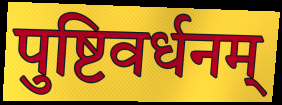
पुष्टिवर्धनम्